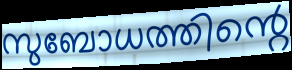
സുബോധത്തിന്റെ